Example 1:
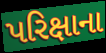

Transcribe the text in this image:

પરિક્ષાના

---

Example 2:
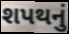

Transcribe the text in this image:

શપથનું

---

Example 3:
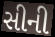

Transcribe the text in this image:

સીની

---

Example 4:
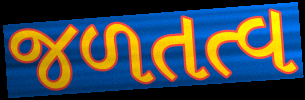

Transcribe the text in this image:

જળતત્વ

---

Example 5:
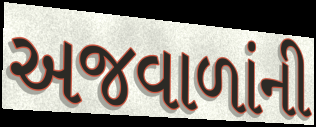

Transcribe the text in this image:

અજવાળાંની